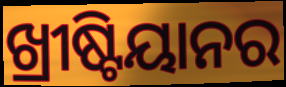
ଖ୍ରୀଷ୍ଟିୟାନର